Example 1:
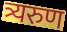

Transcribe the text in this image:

त्र्यरुण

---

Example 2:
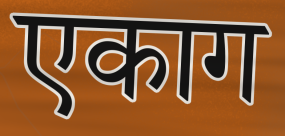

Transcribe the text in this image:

एकाग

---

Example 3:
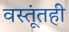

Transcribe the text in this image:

वस्तूंतही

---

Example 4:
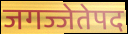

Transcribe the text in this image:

जगज्जेतेपद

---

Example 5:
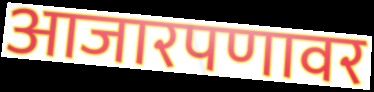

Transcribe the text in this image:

आजारपणावर